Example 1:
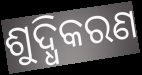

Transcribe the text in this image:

ଶୁଦ୍ଧିକରଣ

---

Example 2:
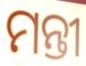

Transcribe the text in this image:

ମନ୍ତୀ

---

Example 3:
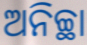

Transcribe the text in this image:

ଅନିଚ୍ଛା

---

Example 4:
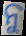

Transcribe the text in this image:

ନୁ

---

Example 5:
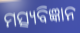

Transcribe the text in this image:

ମତ୍ସ୍ୟବିଜ୍ଞାନ